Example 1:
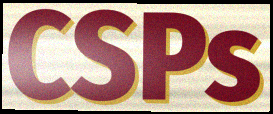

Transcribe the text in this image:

CSPs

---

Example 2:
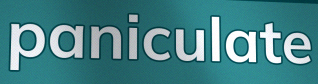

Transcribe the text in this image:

paniculate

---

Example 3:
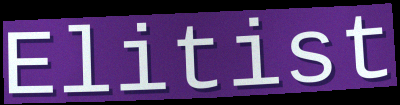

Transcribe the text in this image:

Elitist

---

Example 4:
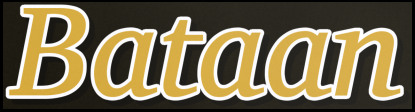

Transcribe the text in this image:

Bataan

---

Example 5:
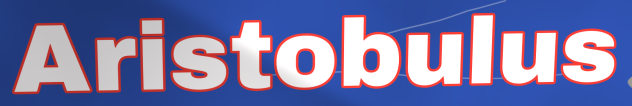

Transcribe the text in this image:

Aristobulus